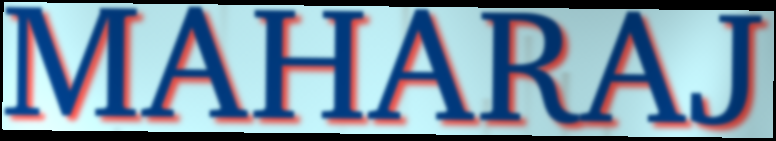
MAHARAJ